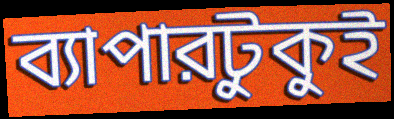
ব্যাপারটুকুই